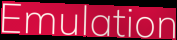
Emulation